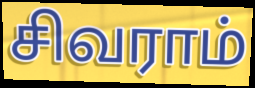
சிவராம்